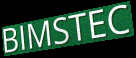
BIMSTEC